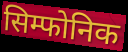
सिम्फोनिक